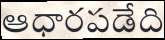
ఆధారపడేది